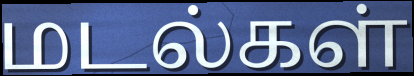
மடல்கள்